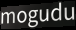
mogudu